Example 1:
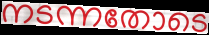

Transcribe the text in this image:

നടന്നതോടെ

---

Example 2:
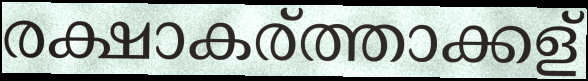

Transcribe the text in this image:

രക്ഷാകര്ത്താക്കള്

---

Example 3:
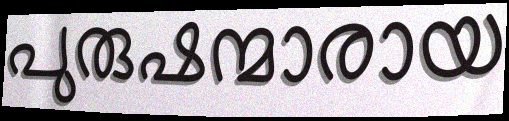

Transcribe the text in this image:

പുരുഷന്മാരായ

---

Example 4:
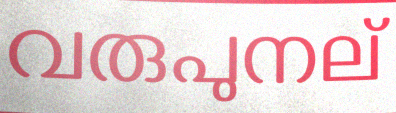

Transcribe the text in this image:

വരുപുനല്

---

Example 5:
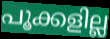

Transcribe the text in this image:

പൂക്കളില്ല